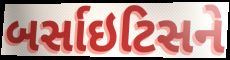
બર્સાઇટિસને